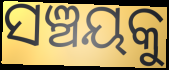
ସଞ୍ଚୟକୁ